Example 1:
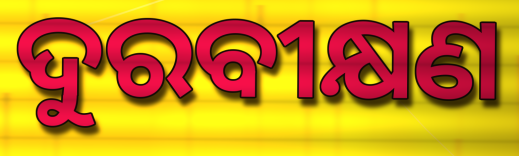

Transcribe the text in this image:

ଦୁରବୀକ୍ଷଣ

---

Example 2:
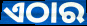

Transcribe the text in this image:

ଏଠାର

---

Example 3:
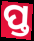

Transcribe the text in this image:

ପ୍ତ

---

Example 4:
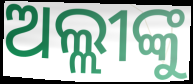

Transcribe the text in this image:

ଅଲ୍ଲୀଙ୍କୁ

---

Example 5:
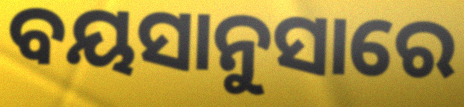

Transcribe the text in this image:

ବୟସାନୁସାରେ